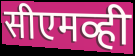
सीएमव्ही